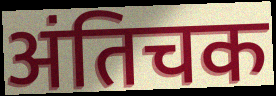
अंतिचक